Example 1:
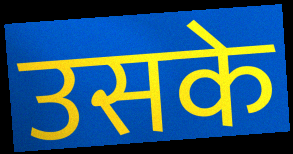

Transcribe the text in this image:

उसके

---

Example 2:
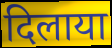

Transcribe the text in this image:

दिलाया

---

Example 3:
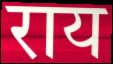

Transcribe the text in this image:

राय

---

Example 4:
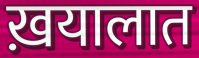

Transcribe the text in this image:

ख़यालात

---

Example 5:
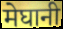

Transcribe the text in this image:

मेघानी